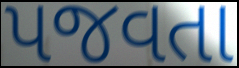
પજવતા